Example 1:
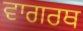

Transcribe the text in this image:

ਵਾਗਰਥ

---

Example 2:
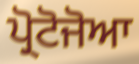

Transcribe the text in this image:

ਪ੍ਰੋਟੋਜੋਆ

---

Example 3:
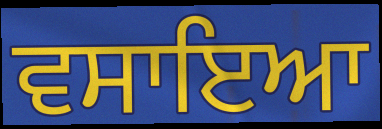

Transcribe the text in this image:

ਵਸਾਇਆ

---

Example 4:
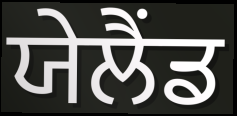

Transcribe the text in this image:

ਯੇਲੈਂਡ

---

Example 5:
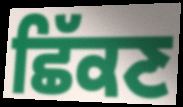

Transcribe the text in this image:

ਛਿੱਕਣ